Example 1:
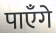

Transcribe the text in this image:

पाऍंगे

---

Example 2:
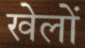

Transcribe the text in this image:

खेलों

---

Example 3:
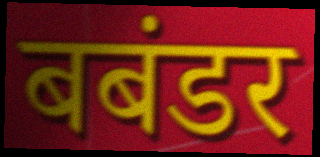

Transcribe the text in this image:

बबंडर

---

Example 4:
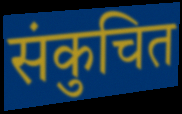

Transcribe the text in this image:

संकुचित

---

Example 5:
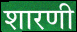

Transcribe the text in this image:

शारणी